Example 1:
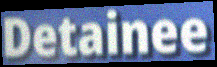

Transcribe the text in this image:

Detainee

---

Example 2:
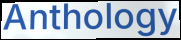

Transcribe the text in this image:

Anthology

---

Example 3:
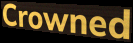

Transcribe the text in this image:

Crowned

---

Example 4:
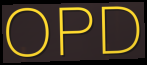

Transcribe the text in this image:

OPD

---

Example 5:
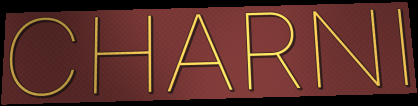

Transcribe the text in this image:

CHARNI